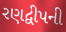
રણદ્વીપની